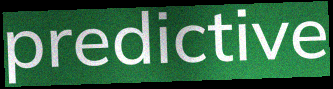
predictive